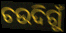
ଚଉଦିଗୁଁ